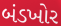
બંડખોર